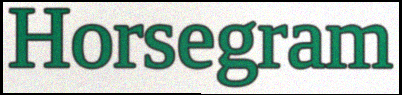
Horsegram